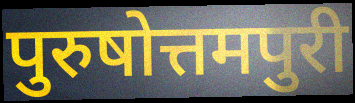
पुरुषोत्तमपुरी